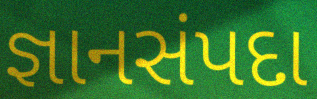
જ્ઞાનસંપદા